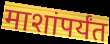
माशांपर्यंत